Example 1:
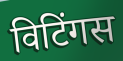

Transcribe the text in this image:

विटिंगस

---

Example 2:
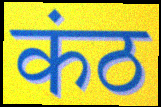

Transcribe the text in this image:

कंठ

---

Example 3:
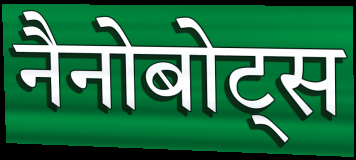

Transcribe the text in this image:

नैनोबोट्स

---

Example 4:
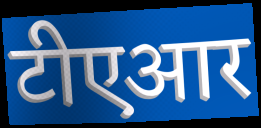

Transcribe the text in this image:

टीएआर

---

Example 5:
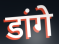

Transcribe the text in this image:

डांगे